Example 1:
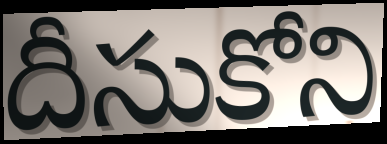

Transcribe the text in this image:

దీసుకోని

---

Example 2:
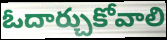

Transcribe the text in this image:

ఓదార్చుకోవాలి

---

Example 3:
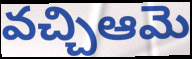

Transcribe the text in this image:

వచ్చిఆమె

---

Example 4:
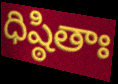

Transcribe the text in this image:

ధిష్ఠితాః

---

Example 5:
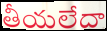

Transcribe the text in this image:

తీయలేదా